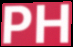
PH